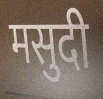
मसुदी